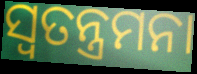
ସ୍ୱତନ୍ତ୍ରମନା